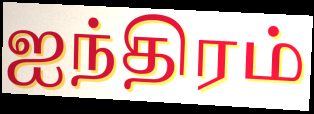
ஐந்திரம்